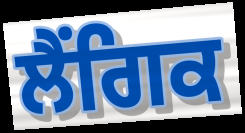
ਲੈਂਗਿਕ